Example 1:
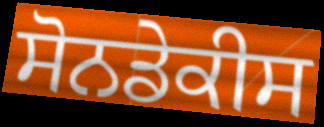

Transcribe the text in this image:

ਸੋਨਡੇਕੀਸ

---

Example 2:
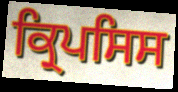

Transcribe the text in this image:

ਕ੍ਰਿਪਸਿਸ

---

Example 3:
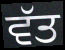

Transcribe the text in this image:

ਵੱਤ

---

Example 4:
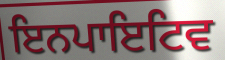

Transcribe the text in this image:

ਇਨਪਾਇਟਿਵ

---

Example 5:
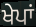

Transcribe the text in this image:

ਖੇਪਾਂ